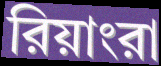
রিয়াংরা